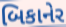
બિકાનેર